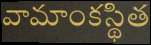
వామాంకస్థిత